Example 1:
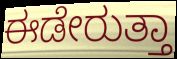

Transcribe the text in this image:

ಈಡೇರುತ್ತಾ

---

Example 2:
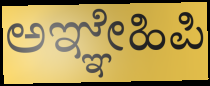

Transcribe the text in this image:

ಅಞ್ಞೇಹಿಪಿ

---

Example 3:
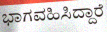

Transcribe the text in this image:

ಭಾಗವಹಿಸಿದ್ದಾರೆ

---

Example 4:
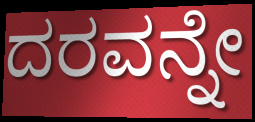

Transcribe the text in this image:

ದರವನ್ನೇ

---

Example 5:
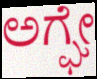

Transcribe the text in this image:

ಅಗ್ಘೇ